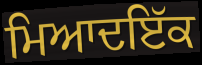
ਮਿਆਦਇੱਕ